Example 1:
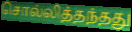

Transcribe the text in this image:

சொல்லித்தந்தது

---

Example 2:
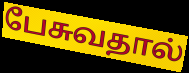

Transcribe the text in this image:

பேசுவதால்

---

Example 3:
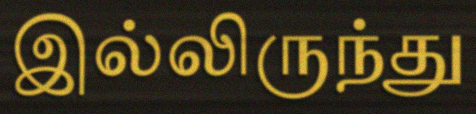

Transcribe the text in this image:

இல்லிருந்து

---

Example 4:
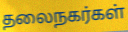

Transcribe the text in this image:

தலைநகர்கள்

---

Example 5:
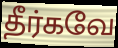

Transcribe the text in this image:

தீர்கவே